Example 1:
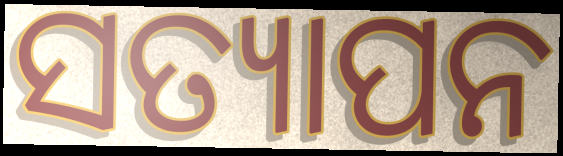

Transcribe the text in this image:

ସତ୍ୟାପନ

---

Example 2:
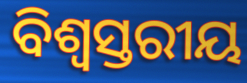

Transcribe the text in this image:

ବିଶ୍ଵସ୍ତରୀୟ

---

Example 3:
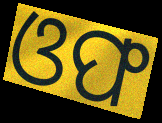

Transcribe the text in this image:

ଓଫ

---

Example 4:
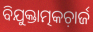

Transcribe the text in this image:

ବିଯୁକ୍ତାତ୍ମକଚ଼ାର୍ଜ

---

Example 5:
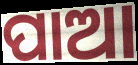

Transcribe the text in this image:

ପାଆ